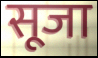
सूजा